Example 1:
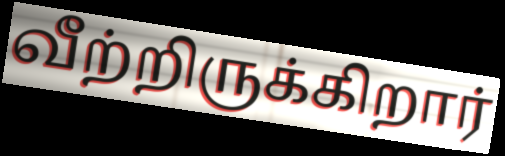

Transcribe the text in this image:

வீற்றிருக்கிறார்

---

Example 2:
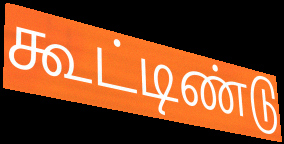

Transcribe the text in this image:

கூட்டிண்டு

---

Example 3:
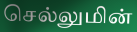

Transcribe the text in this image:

செல்லுமின்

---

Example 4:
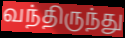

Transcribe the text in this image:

வந்திருந்து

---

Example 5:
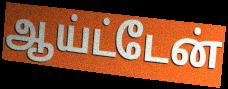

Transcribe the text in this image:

ஆய்ட்டேன்